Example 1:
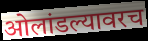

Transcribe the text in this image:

ओलांडल्यावरच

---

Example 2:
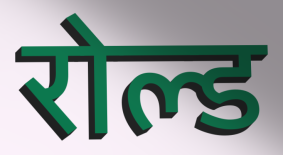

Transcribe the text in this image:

रोल्ड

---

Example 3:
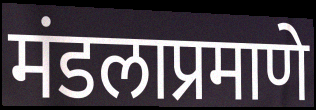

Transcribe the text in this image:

मंडलाप्रमाणे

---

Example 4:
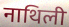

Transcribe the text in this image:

नाथिली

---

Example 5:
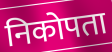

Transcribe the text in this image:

निकोपता